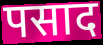
पसाद